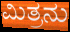
ಮಿತ್ರನು